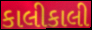
કાલીકાલી